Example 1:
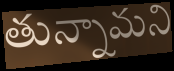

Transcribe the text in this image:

తున్నామని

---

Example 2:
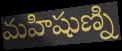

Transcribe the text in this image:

మహిషుణ్ని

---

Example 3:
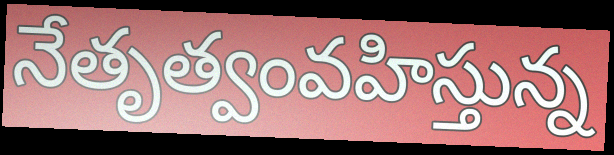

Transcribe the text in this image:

నేతృత్వంవహిస్తున్న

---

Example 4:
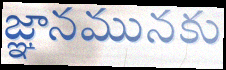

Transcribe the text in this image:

జ్ఞానమునకు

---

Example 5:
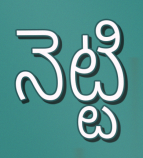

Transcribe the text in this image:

నెట్టి